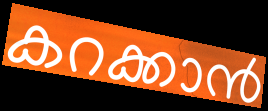
കറക്കാൻ